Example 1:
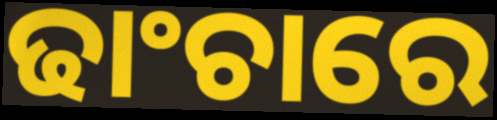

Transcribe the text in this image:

ଢାଂଚାରେ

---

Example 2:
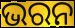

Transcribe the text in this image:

ଭରନ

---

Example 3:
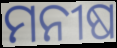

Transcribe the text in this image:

ମନୀଷ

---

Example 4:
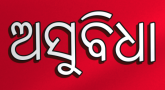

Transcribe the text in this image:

ଅସୁବିଧା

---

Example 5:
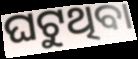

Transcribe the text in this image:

ଘଟୁଥିବା